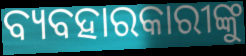
ବ୍ୟବହାରକାରୀଙ୍କୁ